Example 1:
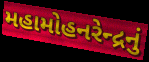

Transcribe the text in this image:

મહામોહનરેન્દ્રનું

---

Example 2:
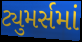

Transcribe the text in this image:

ટ્યુમર્સમાં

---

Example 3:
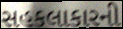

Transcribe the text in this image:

સહકલાકારની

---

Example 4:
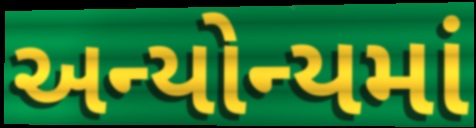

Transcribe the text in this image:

અન્યોન્યમાં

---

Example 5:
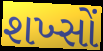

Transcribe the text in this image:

શખ્સોં